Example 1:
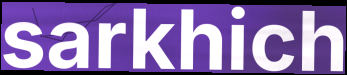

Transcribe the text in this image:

sarkhich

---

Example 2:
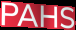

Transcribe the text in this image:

PAHS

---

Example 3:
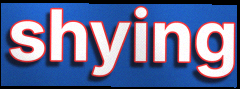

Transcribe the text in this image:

shying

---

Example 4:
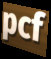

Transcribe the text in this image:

pcf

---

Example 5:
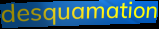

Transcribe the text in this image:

desquamation